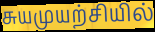
சுயமுயற்சியில்